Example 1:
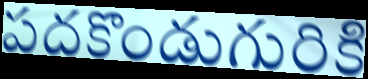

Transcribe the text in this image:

పదకొండుగురికి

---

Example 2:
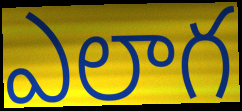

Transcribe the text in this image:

ఎలాగ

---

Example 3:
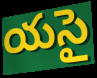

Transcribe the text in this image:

యసై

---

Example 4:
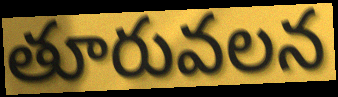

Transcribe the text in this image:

తూరువలన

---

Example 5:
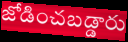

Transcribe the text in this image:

జోడించబడ్డారు